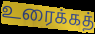
உரைக்கத்